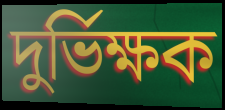
দুৰ্ভিক্ষক